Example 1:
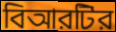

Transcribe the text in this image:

বিআরটির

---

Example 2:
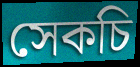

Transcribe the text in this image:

সেকচি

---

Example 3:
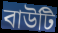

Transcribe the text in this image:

বাউটি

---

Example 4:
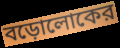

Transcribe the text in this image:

বড়োলোকের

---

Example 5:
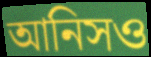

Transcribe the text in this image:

আনিসও